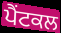
ਪੈਂਟਕਲ